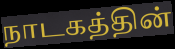
நாடகத்தின்